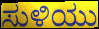
ಸುಳಿಯು